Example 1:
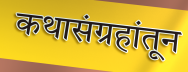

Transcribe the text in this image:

कथासंग्रहांतून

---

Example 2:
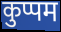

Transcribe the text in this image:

कुप्पम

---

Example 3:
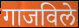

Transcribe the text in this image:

गाजविले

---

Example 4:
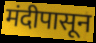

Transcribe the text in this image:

मंदीपासून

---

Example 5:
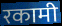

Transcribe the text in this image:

रकामी